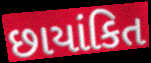
છાયાંકિત